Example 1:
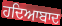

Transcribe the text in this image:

ਹਦਿਆਬਾਦ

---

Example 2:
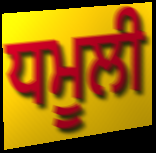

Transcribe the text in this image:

ਧਮੂਲੀ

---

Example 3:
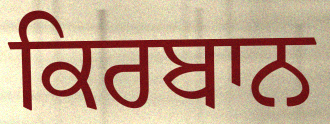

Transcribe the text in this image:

ਕਿਰਬਾਨ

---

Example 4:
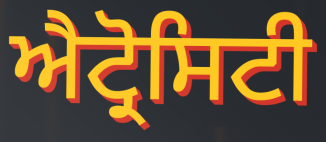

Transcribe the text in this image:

ਐਟ੍ਰੋਸਿਟੀ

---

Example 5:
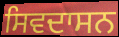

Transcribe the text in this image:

ਸਿਵਦਾਸਨ